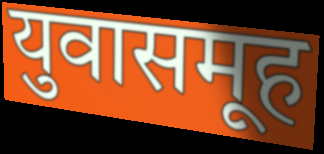
युवासमूह